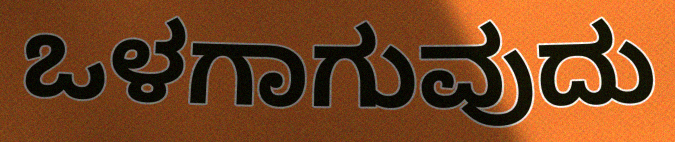
ಒಳಗಾಗುವುದು